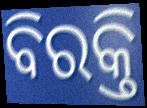
ବିରକ୍ତି